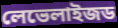
লেভেলাইজড